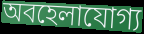
অবহেলাযোগ্য